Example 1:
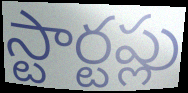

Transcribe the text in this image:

స్టార్టప్లు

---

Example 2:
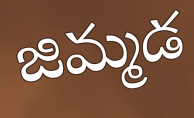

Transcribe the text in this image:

జిమ్మడ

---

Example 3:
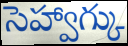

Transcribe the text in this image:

సెహ్వాగ్కు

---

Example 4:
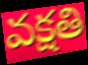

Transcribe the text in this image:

వక్షతి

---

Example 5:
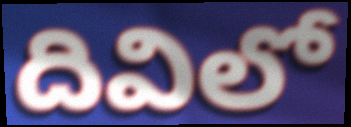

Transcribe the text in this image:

దివిలో